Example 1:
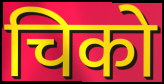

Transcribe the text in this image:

चिको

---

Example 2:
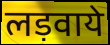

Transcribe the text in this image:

लड़वाये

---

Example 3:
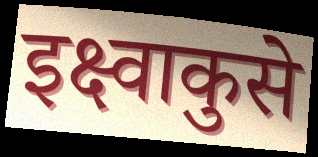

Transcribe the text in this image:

इक्ष्वाकुसे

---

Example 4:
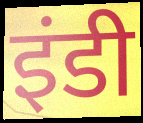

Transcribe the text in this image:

इंडी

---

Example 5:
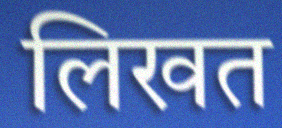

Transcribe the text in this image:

लिखत